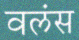
वलंस